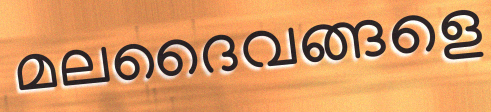
മലദൈവങ്ങളെ